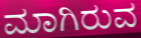
ಮಾಗಿರುವ